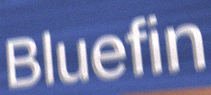
Bluefin